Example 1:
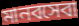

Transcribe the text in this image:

মানবসেবা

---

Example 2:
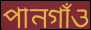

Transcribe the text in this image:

পানগাঁও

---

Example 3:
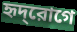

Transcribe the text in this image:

হৃদ্‌রোগে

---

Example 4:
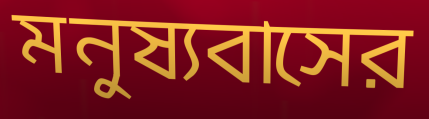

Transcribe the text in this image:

মনুষ্যবাসের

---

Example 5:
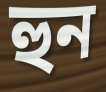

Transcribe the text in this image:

হুন